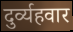
दुर्व्यहवार